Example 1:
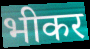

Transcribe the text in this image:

भीकर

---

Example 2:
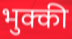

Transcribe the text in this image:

भुक्की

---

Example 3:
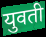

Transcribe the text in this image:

युवती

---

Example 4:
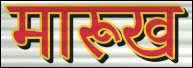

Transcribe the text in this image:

मारूख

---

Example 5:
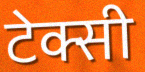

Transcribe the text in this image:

टेक्सी